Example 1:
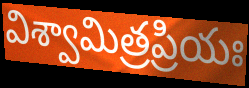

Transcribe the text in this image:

విశ్వామిత్రప్రియః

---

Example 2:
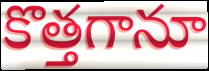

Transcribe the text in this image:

కొత్తగానూ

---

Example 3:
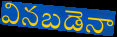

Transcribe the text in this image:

వినబడెనా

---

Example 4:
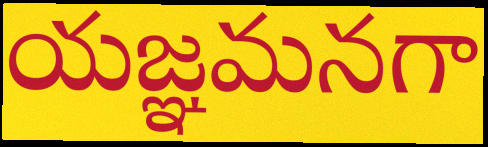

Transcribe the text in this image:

యజ్ఞమనగా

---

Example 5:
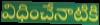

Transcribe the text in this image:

విధించేనాటికి